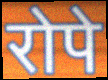
रोपे